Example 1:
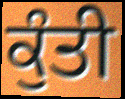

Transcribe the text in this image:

ਕੁੰਤੀ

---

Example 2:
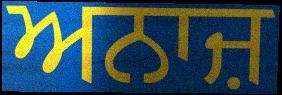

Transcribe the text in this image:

ਅਨਾਜ਼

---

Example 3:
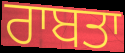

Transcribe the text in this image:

ਰਾਬਤਾ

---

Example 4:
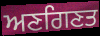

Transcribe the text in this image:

ਅਣਗਿਣਤ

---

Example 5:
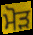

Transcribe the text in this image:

ਮੋੜ